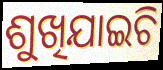
ଶୁଖିଯାଇଚି